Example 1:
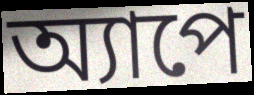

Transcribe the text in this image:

অ্যাপে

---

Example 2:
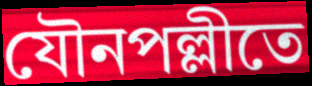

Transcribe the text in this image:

যৌনপল্লীতে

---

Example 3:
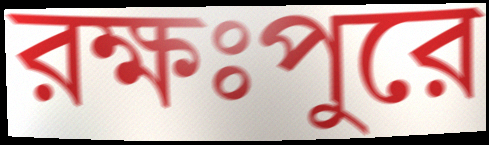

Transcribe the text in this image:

রক্ষঃপুরে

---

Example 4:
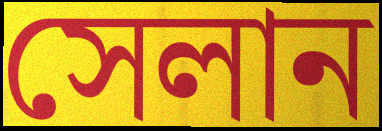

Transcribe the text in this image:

সেলান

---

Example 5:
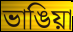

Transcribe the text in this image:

ভাঙিয়া